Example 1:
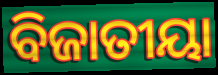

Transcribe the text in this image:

ବିଜାତୀୟା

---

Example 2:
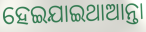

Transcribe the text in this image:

ହେଇଯାଇଥାଆନ୍ତା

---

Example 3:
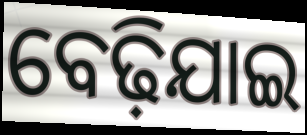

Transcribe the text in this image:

ବେଢ଼ିଯାଇ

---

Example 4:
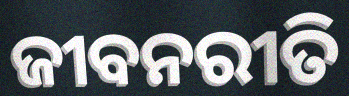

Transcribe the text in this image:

ଜୀବନରୀତି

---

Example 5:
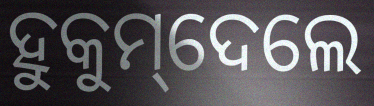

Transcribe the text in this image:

ହୁକୁମ୍‌ଦେଲେ